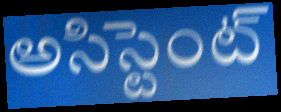
అసిస్టెంట్